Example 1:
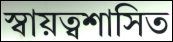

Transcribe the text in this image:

স্বায়ত্বশাসিত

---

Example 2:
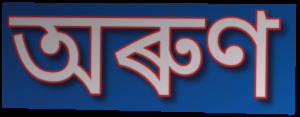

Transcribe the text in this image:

অৰুণ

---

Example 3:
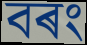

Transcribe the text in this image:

বৰং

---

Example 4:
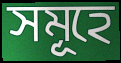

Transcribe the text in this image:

সমূহে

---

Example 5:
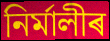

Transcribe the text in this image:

নিৰ্মালীৰ